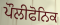
ਪੌਲੀਫੋਨਿਕ